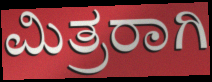
ಮಿತ್ರರಾಗಿ